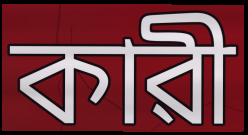
কাৱী